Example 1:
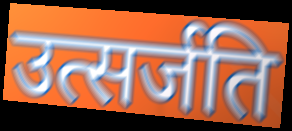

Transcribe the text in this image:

उत्सर्जति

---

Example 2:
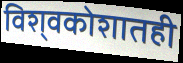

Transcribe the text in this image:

विश्वकोशातही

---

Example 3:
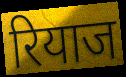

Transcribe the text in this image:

रियाज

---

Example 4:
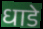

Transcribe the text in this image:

धाडे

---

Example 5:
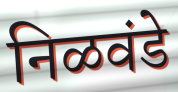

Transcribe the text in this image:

निळवंडे